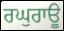
ਰਘੁਰਾਊ